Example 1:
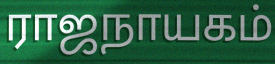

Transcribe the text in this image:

ராஜநாயகம்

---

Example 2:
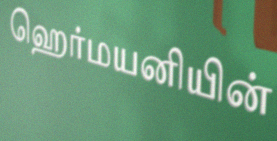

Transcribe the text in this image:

ஹெர்மயனியின்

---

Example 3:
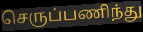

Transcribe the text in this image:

செருப்பணிந்து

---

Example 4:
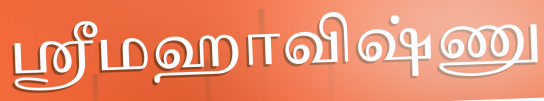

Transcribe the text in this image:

ஸ்ரீமஹாவிஷ்ணு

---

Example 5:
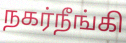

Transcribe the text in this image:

நகர்நீங்கி